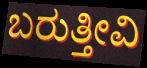
ಬರುತ್ತೀವಿ